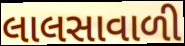
લાલસાવાળી